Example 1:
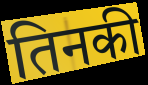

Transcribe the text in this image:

तिनकी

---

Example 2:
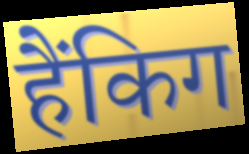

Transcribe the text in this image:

हैंकिग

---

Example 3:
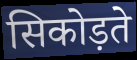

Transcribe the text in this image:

सिकोड़ते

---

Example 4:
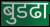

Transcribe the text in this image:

बुडढा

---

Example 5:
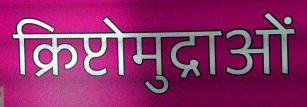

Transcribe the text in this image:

क्रिप्टोमुद्राओं